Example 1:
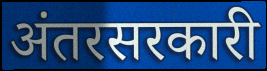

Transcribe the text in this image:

अंतरसरकारी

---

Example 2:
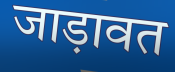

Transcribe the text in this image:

जाड़ावत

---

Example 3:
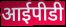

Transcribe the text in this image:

आईपीडी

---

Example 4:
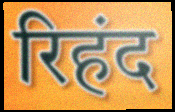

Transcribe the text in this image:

रिहंद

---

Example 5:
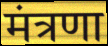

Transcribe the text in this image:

मंत्रणा